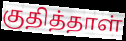
குதித்தாள்